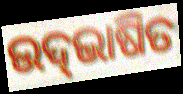
ଉଦ୍‍ଭାଷିତ